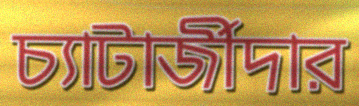
চ্যাটার্জীদার